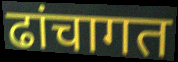
ढांचागत